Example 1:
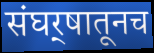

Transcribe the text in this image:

संघर्षातूनच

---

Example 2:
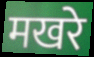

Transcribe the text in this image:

मखरे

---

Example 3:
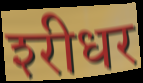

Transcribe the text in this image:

श्रीधर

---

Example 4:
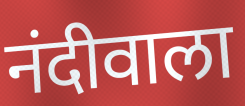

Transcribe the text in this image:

नंदीवाला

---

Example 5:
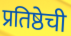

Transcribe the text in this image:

प्रतिष्ठेची